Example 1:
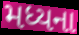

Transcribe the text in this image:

મધ્યના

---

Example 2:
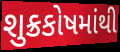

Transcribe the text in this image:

શુક્રકોષમાંથી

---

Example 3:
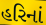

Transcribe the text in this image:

હરિનાં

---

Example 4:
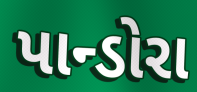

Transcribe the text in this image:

પાન્ડોરા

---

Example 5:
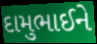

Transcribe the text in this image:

દામુભાઈને